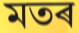
মতৰ